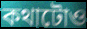
কথাটোও